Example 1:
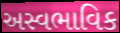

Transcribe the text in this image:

અસ્વભાવિક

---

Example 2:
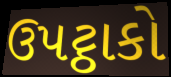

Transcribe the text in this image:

ઉપટ્ઠાકો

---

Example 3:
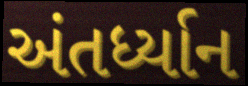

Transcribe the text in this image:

અંતર્ધ્યાન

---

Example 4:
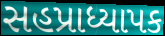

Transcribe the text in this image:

સહપ્રાધ્યાપક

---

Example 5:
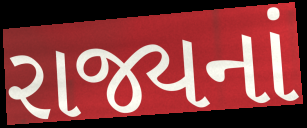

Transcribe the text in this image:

રાજ્યનાં